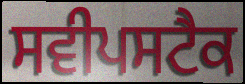
ਸਵੀਪਸਟੈਕ